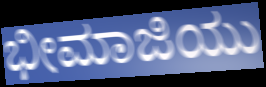
ಭೀಮಾಜಿಯು